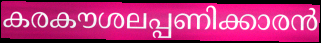
കരകൗശലപ്പണിക്കാരൻ